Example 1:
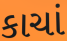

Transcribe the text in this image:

કાચાં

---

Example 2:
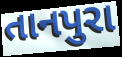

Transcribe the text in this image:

તાનપુરા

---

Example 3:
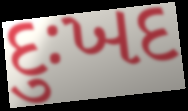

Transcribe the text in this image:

દુઃખદ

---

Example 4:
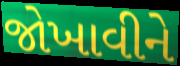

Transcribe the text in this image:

જોખાવીને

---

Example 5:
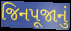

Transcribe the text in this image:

જિનપૂજાનું